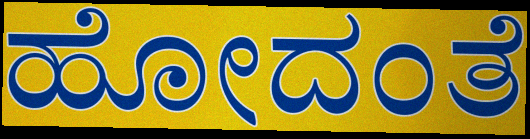
ಹೋದಂತೆ